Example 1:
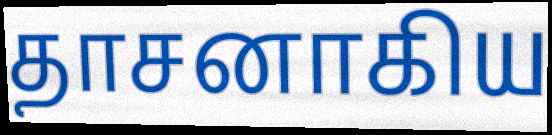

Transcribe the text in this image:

தாசனாகிய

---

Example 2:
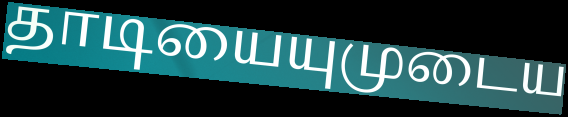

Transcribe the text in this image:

தாடியையுமுடைய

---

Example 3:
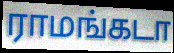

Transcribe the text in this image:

ராமங்கடா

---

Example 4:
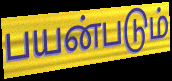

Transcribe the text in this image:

பயன்படும்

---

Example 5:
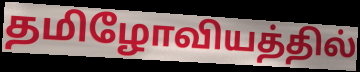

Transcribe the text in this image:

தமிழோவியத்தில்